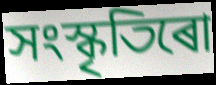
সংস্কৃতিৰো